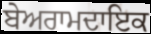
ਬੇਅਰਾਮਦਾਇਕ